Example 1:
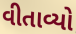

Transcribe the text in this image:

વીતાવ્યો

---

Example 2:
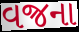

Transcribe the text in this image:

વજ્રના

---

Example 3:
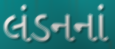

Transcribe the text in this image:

લંડનનાં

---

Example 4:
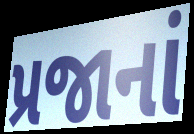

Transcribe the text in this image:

પ્રજાનાં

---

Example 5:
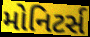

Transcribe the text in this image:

મોનિટર્સ